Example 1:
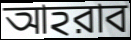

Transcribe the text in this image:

আহরাব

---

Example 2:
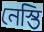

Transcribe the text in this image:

নেস্তি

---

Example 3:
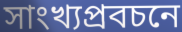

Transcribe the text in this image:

সাংখ্যপ্রবচনে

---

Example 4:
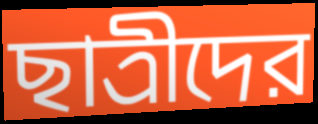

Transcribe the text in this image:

ছাত্রীদের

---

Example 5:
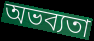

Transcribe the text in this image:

অভব্যতা